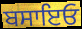
ਬਸਾਇਓ